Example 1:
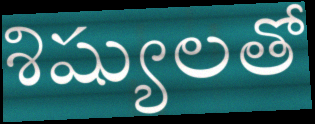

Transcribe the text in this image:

శిష్యులతో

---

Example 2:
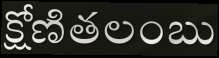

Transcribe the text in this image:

క్షోణితలంబు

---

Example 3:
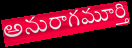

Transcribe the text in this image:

అనురాగమూర్తి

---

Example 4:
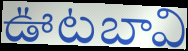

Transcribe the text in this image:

ఊటబావి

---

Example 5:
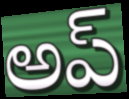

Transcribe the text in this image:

అప్